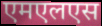
एमएलएस